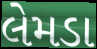
લેમડા